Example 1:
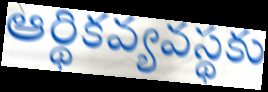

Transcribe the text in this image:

ఆర్థికవ్యవస్థకు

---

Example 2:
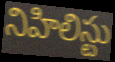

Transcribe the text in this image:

నిహిలిస్టు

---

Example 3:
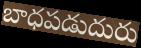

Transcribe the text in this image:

బాధపడుదురు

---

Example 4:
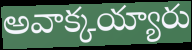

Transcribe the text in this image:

అవాక్కయ్యారు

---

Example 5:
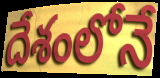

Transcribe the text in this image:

దేశంలోనే